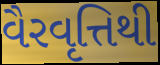
વૈરવૃત્તિથી